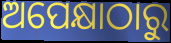
ଅପେକ୍ଷାଠାରୁ